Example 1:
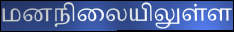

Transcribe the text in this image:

மனநிலையிலுள்ள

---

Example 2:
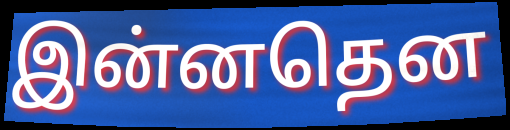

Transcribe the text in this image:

இன்னதென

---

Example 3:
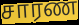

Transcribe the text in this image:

சாரண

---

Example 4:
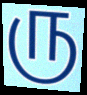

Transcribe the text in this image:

ரு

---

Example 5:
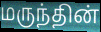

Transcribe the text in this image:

மருந்தின்